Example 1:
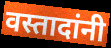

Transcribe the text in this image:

वस्तादांनी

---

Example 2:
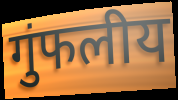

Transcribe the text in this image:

गुंफलीय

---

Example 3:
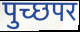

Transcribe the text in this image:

पुच्छपर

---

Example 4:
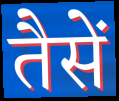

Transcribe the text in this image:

तैसें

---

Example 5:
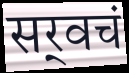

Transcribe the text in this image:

सर्वचं